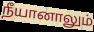
நீயானாலும்